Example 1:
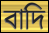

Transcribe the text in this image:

বাদি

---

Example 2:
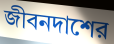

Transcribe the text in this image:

জীবনদাশের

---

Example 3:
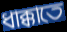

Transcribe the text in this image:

ধাক্কাতে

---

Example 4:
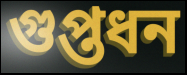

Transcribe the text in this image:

গুপ্তধন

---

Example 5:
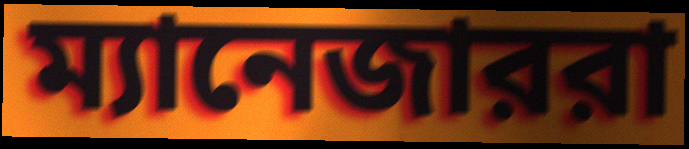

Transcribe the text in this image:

ম্যানেজাররা